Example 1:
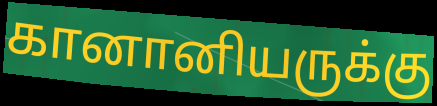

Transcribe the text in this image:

கானானியருக்கு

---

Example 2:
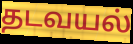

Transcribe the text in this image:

தடவயல்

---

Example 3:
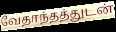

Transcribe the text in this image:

வேதாந்தத்துடன்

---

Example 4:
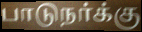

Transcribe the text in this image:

பாடுநர்க்கு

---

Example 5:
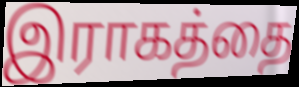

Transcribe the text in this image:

இராகத்தை